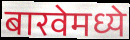
बारवेमध्ये